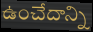
ఉంచేదాన్ని